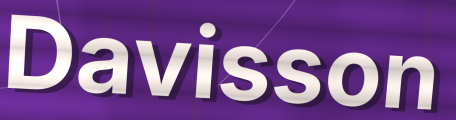
Davisson